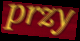
przy